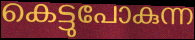
കെട്ടുപോകുന്ന